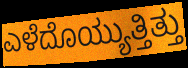
ಎಳೆದೊಯ್ಯುತ್ತಿತ್ತು